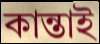
কান্তাই